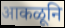
आकळूनि